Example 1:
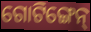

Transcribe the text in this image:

ଗୋଟିଙ୍ଗେନ୍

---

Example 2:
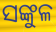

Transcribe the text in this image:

ସଙ୍କୁଳ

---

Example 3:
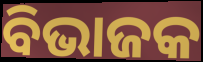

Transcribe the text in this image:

ବିଭାଜକ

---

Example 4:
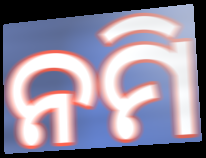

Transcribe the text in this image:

ନମି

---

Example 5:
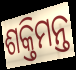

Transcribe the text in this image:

ଶକ୍ତିମନ୍ତ